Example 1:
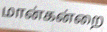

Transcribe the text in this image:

மான்கன்றை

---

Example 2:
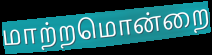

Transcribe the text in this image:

மாற்றமொன்றை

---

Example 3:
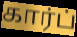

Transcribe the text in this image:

கார்ப்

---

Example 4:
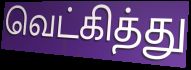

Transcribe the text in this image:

வெட்கித்து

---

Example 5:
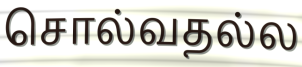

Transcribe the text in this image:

சொல்வதல்ல